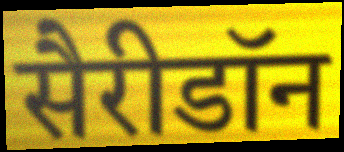
सैरीडॉन